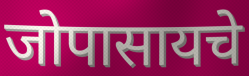
जोपासायचे